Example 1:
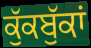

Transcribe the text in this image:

ਕੁੱਕਬੁੱਕਾਂ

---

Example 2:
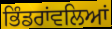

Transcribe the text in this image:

ਭਿੰਡਰਾਂਵਲਿਆਂ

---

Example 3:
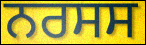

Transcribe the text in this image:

ਨਰਸਸ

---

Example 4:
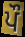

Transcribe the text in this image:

ਪੌ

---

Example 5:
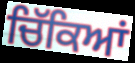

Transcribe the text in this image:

ਚਿੱਕਿਆਂ